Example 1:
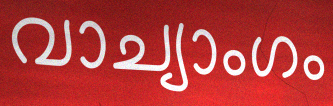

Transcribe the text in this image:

വാച്യാംഗം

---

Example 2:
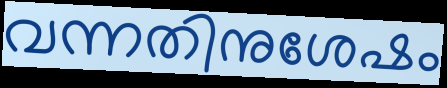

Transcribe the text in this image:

വന്നതിനുശേഷം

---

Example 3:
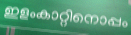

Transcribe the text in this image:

ഇളംകാറ്റിനൊപ്പം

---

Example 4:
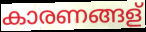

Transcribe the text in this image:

കാരണങ്ങള്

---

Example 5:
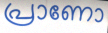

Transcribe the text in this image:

പ്രാണോ